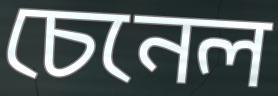
চেনেল